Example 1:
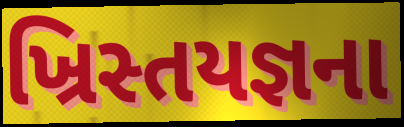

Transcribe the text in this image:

ખ્રિસ્તયજ્ઞના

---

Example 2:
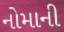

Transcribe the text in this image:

નોમાની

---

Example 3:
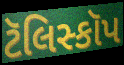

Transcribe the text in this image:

ટૅલિસ્કૉપ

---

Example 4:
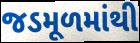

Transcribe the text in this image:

જડમૂળમાંથી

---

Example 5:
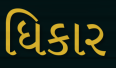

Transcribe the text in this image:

ધિકાર